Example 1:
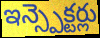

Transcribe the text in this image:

ఇన్స్పెక్టర్లు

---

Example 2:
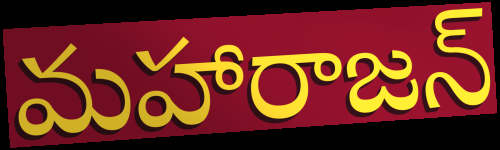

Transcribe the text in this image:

మహారాజన్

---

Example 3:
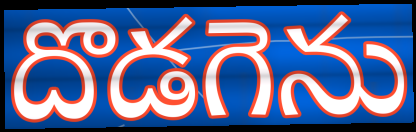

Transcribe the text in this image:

దొడగెను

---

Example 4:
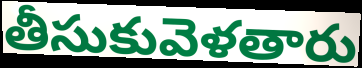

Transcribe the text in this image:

తీసుకువెళతారు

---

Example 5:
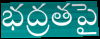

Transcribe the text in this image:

భద్రతపై